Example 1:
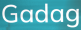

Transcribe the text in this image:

Gadag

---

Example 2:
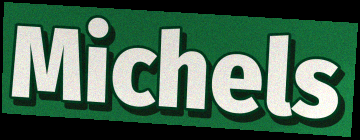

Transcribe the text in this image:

Michels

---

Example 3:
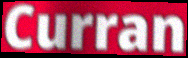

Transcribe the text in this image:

Curran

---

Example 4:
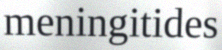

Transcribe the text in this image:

meningitides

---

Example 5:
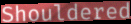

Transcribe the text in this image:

Shouldered